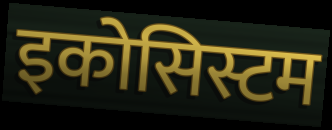
इकोसिस्टम